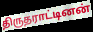
திருதராட்டினன்